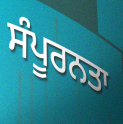
ਸੰਪੂਰਨਤਾ